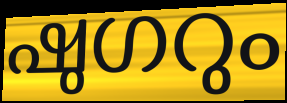
ഷുഗറും